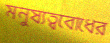
মনুষ্যত্ববোধের